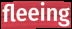
fleeing